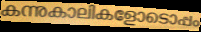
കന്നുകാലികളോടൊപ്പം